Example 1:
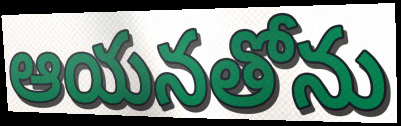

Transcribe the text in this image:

ఆయనతోను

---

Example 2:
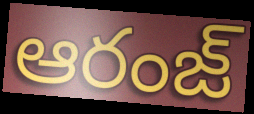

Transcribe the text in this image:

ఆరంజ్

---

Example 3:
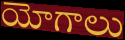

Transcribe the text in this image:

యోగాలు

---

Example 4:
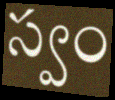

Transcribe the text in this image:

స్వం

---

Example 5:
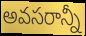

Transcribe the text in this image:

అవసరాన్నీ